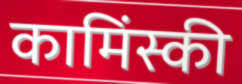
कामिंस्की